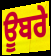
ਊਬਰੇ